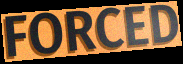
FORCED